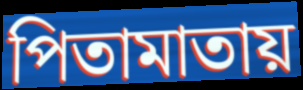
পিতামাতায়